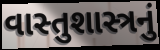
વાસ્તુશાસ્ત્રનું